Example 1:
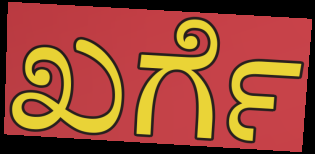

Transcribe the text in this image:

ಖರ್ಗೆ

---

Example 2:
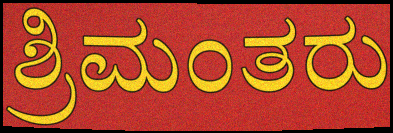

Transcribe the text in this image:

ಶ್ರಿಮಂತರು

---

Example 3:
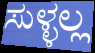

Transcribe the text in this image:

ಸುಳ್ಳಲ್ಲ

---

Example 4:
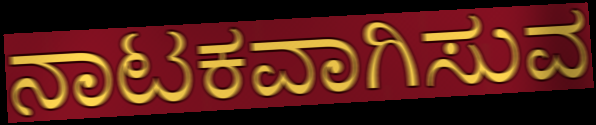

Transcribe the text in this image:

ನಾಟಕವಾಗಿಸುವ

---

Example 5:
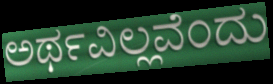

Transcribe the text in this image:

ಅರ್ಥವಿಲ್ಲವೆಂದು